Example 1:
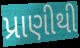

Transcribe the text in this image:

પ્રાણીથી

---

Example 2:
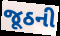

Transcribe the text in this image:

જૂઠની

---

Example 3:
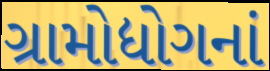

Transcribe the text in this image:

ગ્રામોદ્યોગનાં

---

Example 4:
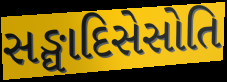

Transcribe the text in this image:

સઙ્ઘાદિસેસોતિ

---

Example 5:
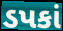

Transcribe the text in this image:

ડપકાં